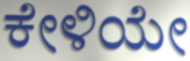
ಕೇಳಿಯೇ